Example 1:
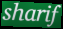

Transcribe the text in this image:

sharif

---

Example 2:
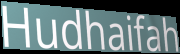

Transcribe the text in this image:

Hudhaifah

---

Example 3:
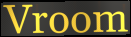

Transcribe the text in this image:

Vroom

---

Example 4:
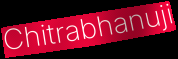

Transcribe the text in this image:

Chitrabhanuji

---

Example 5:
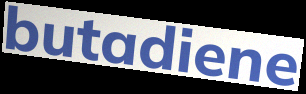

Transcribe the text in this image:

butadiene